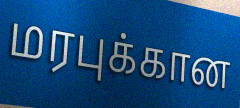
மரபுக்கான